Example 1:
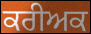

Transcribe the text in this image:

ਕਰੀਅਕ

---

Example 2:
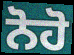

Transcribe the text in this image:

ਨੋਹੋ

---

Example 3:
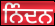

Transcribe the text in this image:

ਨਿੰਦਨ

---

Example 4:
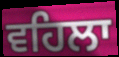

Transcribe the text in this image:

ਵਹਿਲਾ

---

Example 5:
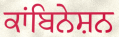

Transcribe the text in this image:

ਕਾਂਬਿਨੇਸ਼ਨ